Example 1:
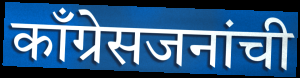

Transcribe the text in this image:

काँग्रेसजनांची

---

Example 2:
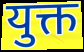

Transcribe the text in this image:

युक्त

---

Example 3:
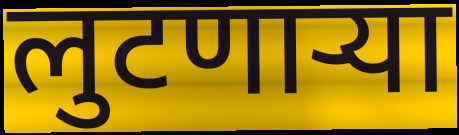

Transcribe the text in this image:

लुटणाऱ्या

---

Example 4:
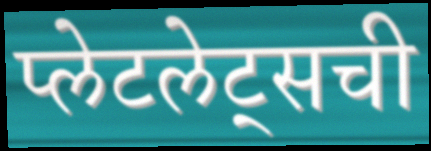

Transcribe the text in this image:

प्लेटलेट्‌सची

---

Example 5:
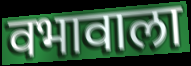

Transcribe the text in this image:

वभावाला